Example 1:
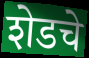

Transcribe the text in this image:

शेडचे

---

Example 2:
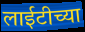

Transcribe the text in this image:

लाईटीच्या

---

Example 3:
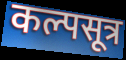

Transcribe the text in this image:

कल्पसूत्र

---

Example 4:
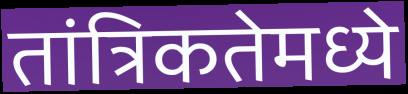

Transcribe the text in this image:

तांत्रिकतेमध्ये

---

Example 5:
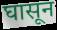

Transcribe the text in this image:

घासून